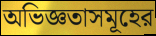
অভিজ্ঞতাসমূহের